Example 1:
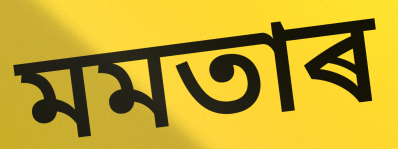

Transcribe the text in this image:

মমতাৰ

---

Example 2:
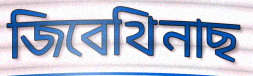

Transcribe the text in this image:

জিবেথিনাছ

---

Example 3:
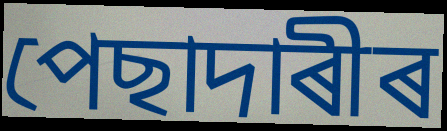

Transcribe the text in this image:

পেছাদাৰীৰ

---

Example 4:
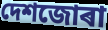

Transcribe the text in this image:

দেশজোৰা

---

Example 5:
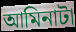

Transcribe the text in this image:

আমিনাটা